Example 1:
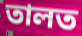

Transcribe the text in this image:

তালত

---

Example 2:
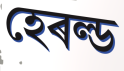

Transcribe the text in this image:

হেৰল্ড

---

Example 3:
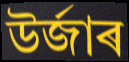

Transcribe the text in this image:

উৰ্জাৰ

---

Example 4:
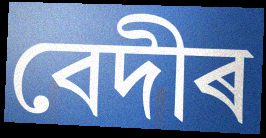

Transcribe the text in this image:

বেদীৰ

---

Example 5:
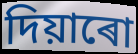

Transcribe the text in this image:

দিয়াৰো